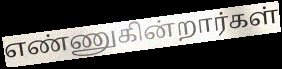
எண்ணுகின்றார்கள்